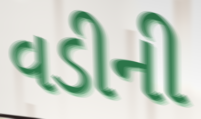
વડીની